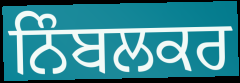
ਨਿੰਬਲਕਰ